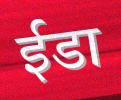
ईडा